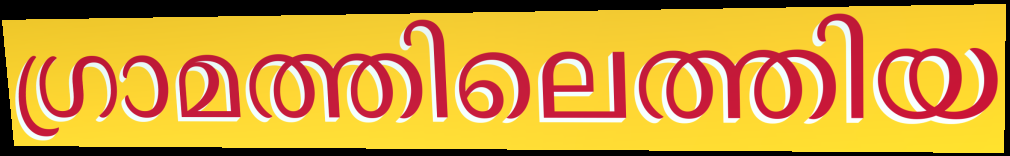
ഗ്രാമത്തിലെത്തിയ